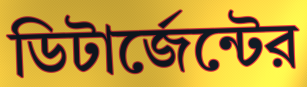
ডিটার্জেন্টের